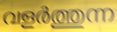
വളർത്തുന്ന